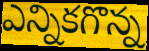
ఎన్నికగొన్న